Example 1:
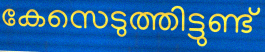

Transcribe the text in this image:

കേസെടുത്തിട്ടുണ്ട്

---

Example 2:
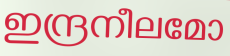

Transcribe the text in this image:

ഇന്ദ്രനീലമോ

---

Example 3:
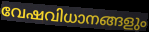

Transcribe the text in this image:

വേഷവിധാനങ്ങളും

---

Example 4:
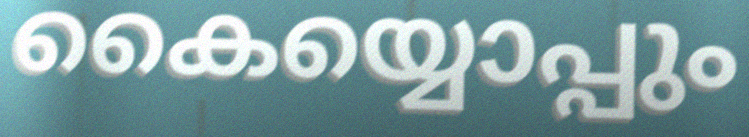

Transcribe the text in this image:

കൈയ്യൊപ്പും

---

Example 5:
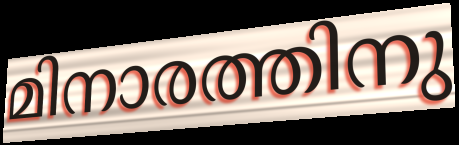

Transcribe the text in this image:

മിനാരത്തിനു